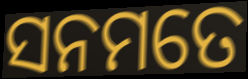
ସନମତେ